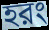
হরং